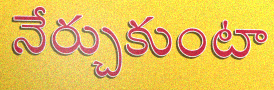
నేర్చుకుంటా